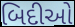
બિદીઓ